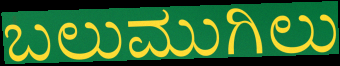
ಬಲುಮುಗಿಲು